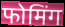
फोमिंग